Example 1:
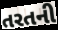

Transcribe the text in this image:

તરતની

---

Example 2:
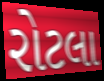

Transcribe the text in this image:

રોટલા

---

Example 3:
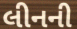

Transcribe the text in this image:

લીનની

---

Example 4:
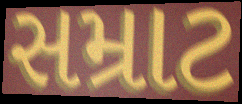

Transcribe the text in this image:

સમ્રાટ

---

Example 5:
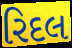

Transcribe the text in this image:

રિદલ